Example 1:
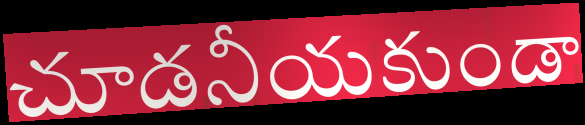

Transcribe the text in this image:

చూడనీయకుండా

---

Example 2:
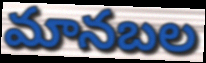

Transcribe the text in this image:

మానబల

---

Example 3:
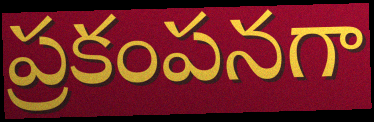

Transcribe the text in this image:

ప్రకంపనగా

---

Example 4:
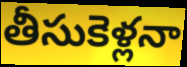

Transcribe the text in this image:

తీసుకెళ్లనా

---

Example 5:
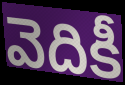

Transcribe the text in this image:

వెదికీ